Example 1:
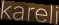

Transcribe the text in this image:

kareli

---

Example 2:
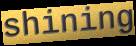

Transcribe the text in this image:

shining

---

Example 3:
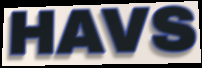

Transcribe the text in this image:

HAVS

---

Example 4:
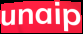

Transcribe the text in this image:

unaip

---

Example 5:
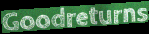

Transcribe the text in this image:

Goodreturns